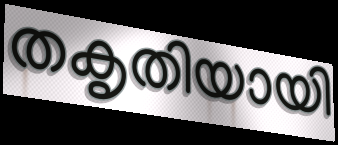
തകൃതിയായി